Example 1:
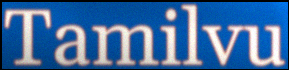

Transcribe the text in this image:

Tamilvu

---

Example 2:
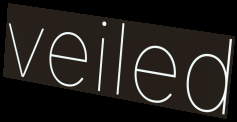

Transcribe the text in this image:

veiled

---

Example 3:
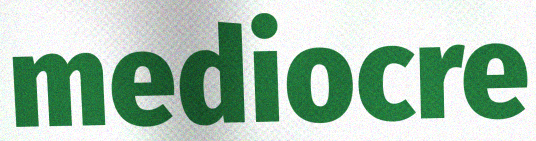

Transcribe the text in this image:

mediocre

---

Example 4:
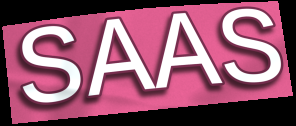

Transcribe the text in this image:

SAAS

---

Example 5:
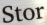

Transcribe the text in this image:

Stor